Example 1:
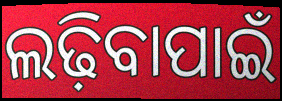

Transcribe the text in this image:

ଲଢ଼ିବାପାଇଁ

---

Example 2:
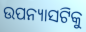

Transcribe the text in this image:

ଉପନ୍ୟାସଟିକୁ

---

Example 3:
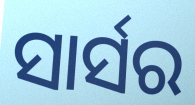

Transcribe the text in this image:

ସାର୍ସର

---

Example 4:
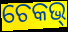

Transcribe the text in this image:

ଚେକଭ୍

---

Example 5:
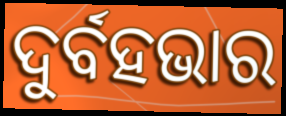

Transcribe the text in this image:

ଦୁର୍ବହଭାର